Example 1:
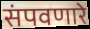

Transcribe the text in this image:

संपवणारे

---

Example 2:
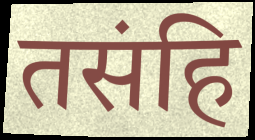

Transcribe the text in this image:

तसंहि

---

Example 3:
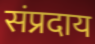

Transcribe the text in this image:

संप्रदाय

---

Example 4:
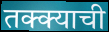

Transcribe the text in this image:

तक्क्याची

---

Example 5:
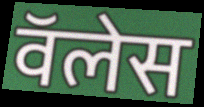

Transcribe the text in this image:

वॅलेस